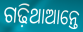
ଗଢ଼ିଥାଆନ୍ତେ